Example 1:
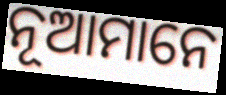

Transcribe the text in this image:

ନୂଆମାନେ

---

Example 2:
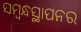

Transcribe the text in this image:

ସମ୍ବନ୍ଧସ୍ଥାପନର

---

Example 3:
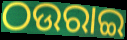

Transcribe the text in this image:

ଠଉରାଇ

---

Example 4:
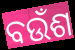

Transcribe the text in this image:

ବଉଁଶ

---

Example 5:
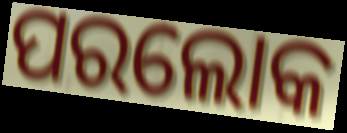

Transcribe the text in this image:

ପରଲୋକ